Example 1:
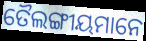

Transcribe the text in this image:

ତୈଲଙ୍ଗୀୟମାନେ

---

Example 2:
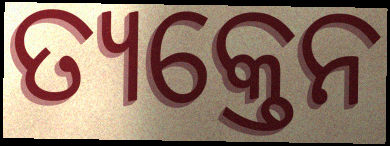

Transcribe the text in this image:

ତ୍ୟକ୍ତେନ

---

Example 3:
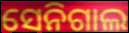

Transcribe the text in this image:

ସେନିଗାଲ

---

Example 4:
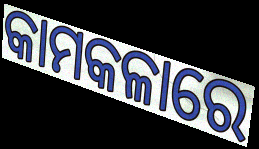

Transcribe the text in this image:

କାମକଳାରେ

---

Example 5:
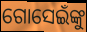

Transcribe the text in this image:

ଗୋସେଇଁଙ୍କୁ